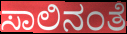
ಸಾಲಿನಂತೆ